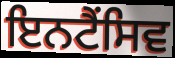
ਇਨਟੈਂਸਿਵ